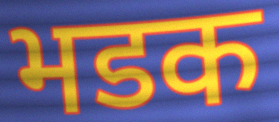
भडक